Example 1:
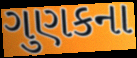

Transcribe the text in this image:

ગુણકના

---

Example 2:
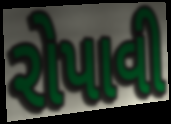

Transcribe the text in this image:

રોપાવી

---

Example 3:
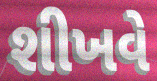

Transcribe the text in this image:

શીખવે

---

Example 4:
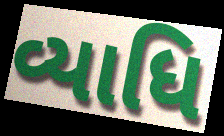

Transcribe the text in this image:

વ્યાધિ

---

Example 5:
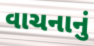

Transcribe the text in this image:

વાચનાનું